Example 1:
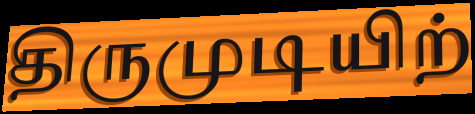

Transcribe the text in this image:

திருமுடியிற்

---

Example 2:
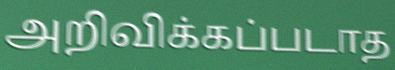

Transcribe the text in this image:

அறிவிக்கப்படாத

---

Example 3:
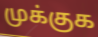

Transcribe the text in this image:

முக்குக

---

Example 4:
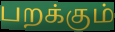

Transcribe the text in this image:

பறக்கும்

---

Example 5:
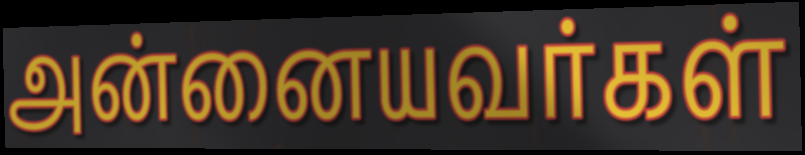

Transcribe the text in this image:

அன்னையவர்கள்